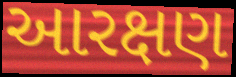
આરક્ષણ